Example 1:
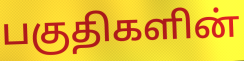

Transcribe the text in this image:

பகுதிகளின்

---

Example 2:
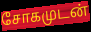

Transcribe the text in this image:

சோகமுடன்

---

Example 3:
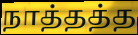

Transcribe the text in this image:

நாத்தத்த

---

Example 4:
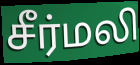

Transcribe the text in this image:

சீர்மலி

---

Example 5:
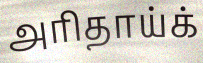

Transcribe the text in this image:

அரிதாய்க்